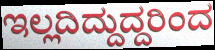
ಇಲ್ಲದಿದ್ದುದ್ದರಿಂದ